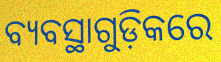
ବ୍ୟବସ୍ଥାଗୁଡ଼ିକରେ